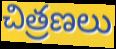
చిత్రణలు